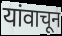
यांवाचून